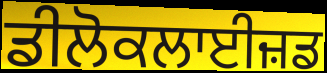
ਡੀਲੋਕਲਾਈਜ਼ਡ